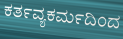
ಕರ್ತವ್ಯಕರ್ಮದಿಂದ